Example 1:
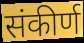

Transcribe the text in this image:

संकीर्ण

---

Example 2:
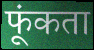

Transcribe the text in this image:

फूंकता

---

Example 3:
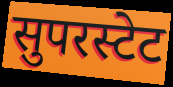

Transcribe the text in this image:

सुपरस्टेट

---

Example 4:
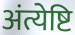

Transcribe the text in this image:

अंत्येष्टि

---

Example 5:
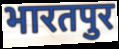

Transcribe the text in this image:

भारतपुर